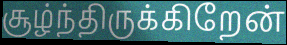
சூழ்ந்திருக்கிறேன்